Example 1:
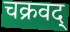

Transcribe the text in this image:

चक्रवद्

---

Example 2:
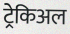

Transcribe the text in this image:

ट्रेकिअल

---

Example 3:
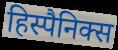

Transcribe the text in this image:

हिस्पैनिक्स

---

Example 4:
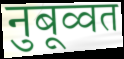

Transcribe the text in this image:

नुबूव्वत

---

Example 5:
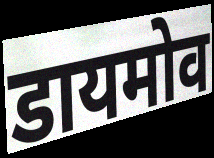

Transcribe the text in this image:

डायमोव